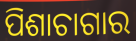
ପିଶାଚାଗାର